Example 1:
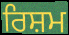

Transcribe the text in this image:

ਰਿਸ਼ਮ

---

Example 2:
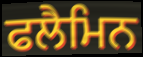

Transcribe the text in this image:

ਫਲੈਮਿਨ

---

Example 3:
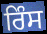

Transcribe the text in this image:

ਰਿੰਸ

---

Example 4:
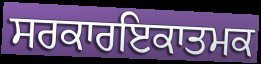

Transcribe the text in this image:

ਸਰਕਾਰਇਕਾਤਮਕ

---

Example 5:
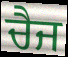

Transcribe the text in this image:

ਚੈਜ